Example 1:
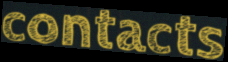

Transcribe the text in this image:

contacts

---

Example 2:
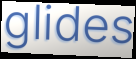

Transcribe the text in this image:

glides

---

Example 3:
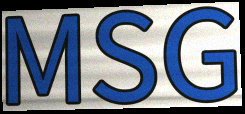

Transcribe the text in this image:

MSG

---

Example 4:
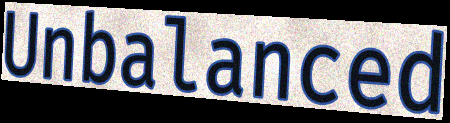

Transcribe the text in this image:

Unbalanced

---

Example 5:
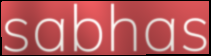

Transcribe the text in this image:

sabhas